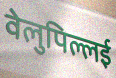
वेलुपिल्लई